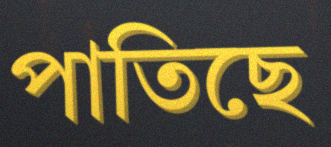
পাতিছে